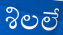
శిలలే